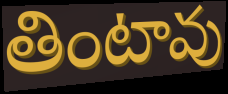
తింటావు